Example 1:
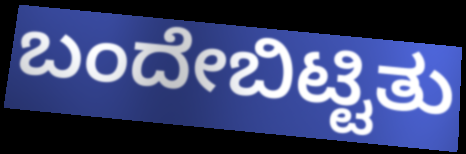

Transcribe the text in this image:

ಬಂದೇಬಿಟ್ಟಿತು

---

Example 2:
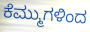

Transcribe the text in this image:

ಕೆಮ್ಮುಗಳಿಂದ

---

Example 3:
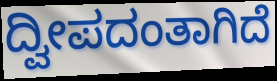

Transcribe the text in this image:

ದ್ವೀಪದಂತಾಗಿದೆ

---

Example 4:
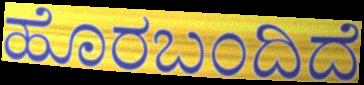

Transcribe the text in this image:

ಹೊರಬಂದಿದೆ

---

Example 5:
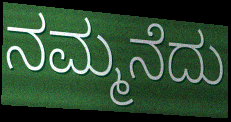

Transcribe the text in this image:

ನಮ್ಮನೆದು